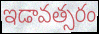
ఇడావత్సరం